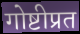
गोष्टीप्रत